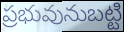
ప్రభువునుబట్టి